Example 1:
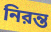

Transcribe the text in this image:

নিরন্ত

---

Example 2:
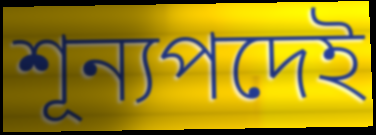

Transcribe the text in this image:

শূন্যপদেই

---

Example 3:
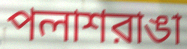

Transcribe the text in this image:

পলাশরাঙা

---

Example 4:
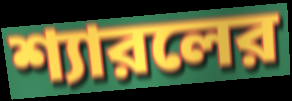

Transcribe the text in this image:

শ্যারলের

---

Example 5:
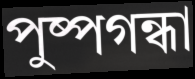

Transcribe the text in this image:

পুষ্পগন্ধা